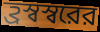
হ্রস্বস্বরের